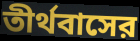
তীর্থবাসের